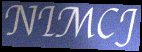
NIMCJ